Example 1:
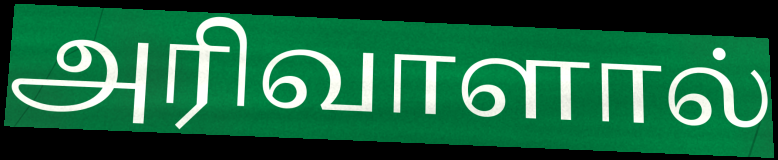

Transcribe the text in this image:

அரிவாளால்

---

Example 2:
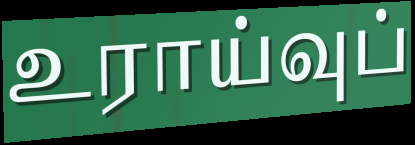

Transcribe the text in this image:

உராய்வுப்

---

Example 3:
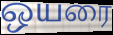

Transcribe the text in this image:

ஒயரை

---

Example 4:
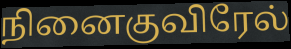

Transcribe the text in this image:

நினைகுவிரேல்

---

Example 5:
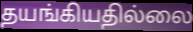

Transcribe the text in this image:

தயங்கியதில்லை